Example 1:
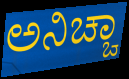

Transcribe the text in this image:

ಅನಿಚ್ಚಾ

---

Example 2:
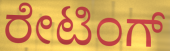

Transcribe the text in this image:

ರೇಟಿಂಗ್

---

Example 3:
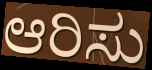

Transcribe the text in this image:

ಆರಿಸು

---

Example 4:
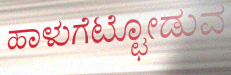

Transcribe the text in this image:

ಹಾಳುಗೆಟ್ಟೋಡುವ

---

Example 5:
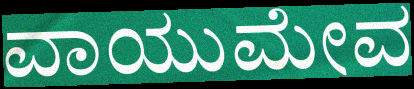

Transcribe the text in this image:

ವಾಯುಮೇವ